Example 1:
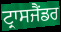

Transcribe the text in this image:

ਟ੍ਰਾਸਜੈਂਡਰ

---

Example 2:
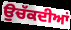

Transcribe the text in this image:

ਉਚੱਕਦੀਆਂ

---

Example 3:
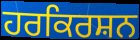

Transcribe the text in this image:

ਹਰਕਿਰਸ਼ਨ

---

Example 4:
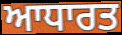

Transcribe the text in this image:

ਆਧਾਰਤ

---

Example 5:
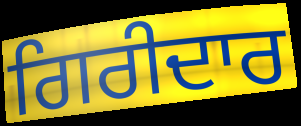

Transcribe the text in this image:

ਗਿਰੀਦਾਰ